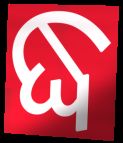
ଦ୍ଧ